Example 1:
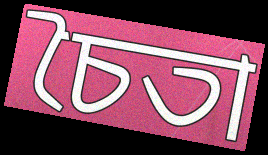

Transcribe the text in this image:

চৈতা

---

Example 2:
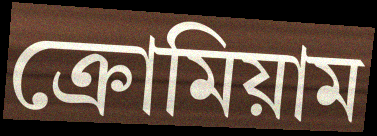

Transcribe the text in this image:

ক্রোমিয়াম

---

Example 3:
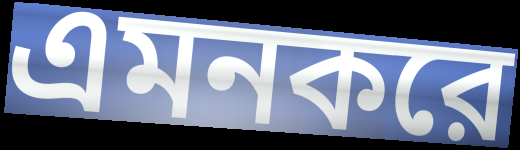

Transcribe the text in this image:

এমনকরে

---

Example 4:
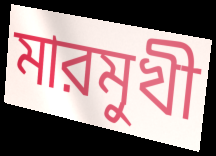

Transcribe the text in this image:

মারমুখী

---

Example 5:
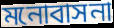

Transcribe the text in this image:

মনোবাসনা